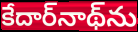
కేదార్‌నాథ్‌ను